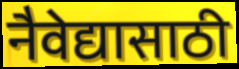
नैवेद्यासाठी